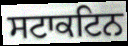
ਸਟਾਕਟਿਨ